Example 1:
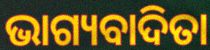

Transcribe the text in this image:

ଭାଗ୍ୟବାଦିତା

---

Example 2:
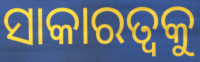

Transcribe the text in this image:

ସାକାରତ୍ଵକୁ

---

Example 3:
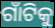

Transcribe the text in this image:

ଗାଁଟିକୁ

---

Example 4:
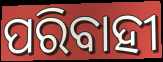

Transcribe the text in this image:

ପରିବାହୀ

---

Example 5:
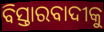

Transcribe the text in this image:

ବିସ୍ତାରବାଦୀକୁ